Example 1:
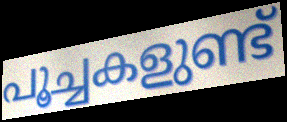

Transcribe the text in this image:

പൂച്ചകളുണ്ട്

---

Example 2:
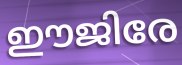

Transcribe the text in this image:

ഈജിരേ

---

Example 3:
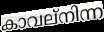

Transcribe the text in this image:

കാവല്നിന്ന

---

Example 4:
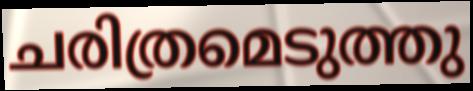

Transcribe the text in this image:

ചരിത്രമെടുത്തു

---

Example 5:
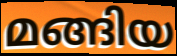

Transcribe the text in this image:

മങ്ങിയ